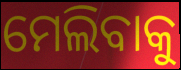
ମେଲିବାକୁ